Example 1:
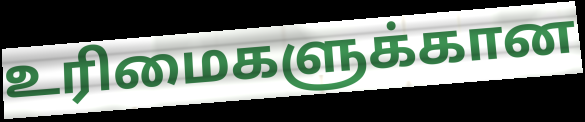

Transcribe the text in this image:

உரிமைகளுக்கான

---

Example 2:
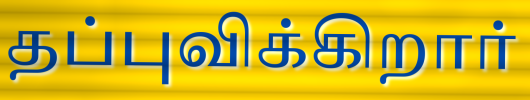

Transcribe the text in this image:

தப்புவிக்கிறார்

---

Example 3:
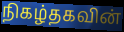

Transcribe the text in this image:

நிகழ்தகவின்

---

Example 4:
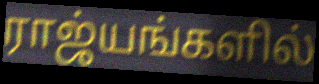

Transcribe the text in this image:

ராஜ்யங்களில்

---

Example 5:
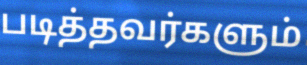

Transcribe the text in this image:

படித்தவர்களும்